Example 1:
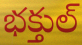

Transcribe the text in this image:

భక్తుల్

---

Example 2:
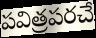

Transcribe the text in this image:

పవిత్రపరచే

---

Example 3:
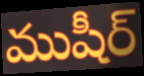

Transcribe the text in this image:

ముషీర్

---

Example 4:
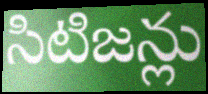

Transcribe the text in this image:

సిటిజన్లు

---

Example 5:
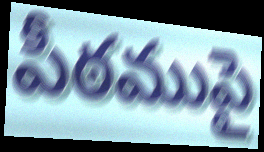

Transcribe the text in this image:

పీఠముపై